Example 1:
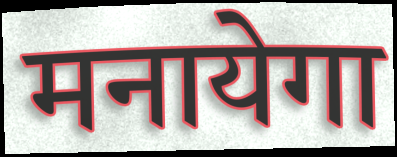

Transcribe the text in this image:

मनायेगा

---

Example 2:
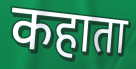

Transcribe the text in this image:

कहाता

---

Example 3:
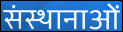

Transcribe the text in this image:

संस्थानाओं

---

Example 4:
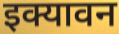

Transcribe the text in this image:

इक्यावन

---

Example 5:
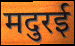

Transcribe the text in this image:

मदुरई